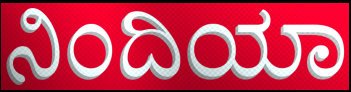
ನಿಂದಿಯಾ